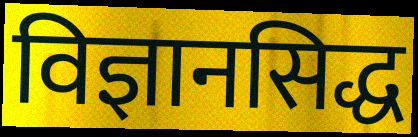
विज्ञानसिद्ध